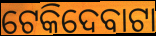
ଟେକିଦେବାଟା